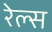
रेल्स